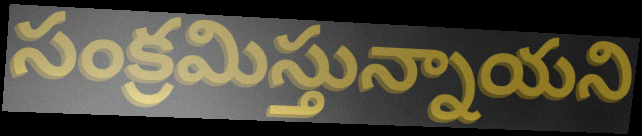
సంక్రమిస్తున్నాయని